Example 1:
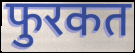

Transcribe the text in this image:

फुरकत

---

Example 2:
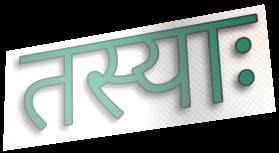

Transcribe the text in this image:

तस्याः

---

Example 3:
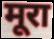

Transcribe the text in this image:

मूरा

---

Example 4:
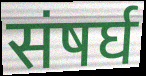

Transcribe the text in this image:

संषर्घ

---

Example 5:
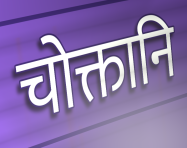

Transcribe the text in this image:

चोक्तानि